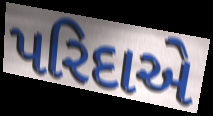
પરિદાએ